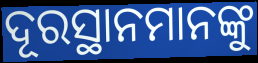
ଦୂରସ୍ଥାନମାନଙ୍କୁ